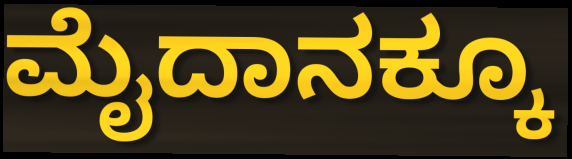
ಮೈದಾನಕ್ಕೂ